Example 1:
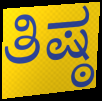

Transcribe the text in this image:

ತಿಷ್ಠ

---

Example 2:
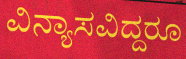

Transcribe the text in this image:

ವಿನ್ಯಾಸವಿದ್ದರೂ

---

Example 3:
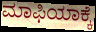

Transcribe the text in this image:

ಮಾಫಿಯಾಕ್ಕೆ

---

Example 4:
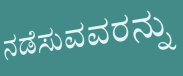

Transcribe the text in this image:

ನಡೆಸುವವರನ್ನು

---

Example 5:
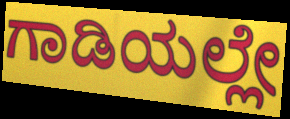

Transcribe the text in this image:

ಗಾಡಿಯಲ್ಲೇ